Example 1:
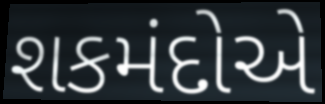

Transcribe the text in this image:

શકમંદોએ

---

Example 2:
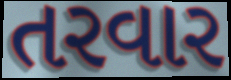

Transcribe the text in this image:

તરવાર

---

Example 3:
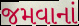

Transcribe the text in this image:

જમવાનાં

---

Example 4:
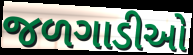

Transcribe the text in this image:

જળગાડીઓ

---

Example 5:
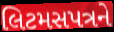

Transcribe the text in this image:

લિટમસપત્રને